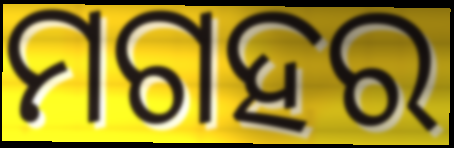
ମଗହର